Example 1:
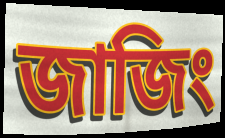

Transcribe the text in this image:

জাজিং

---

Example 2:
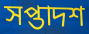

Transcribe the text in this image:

সপ্তাদশ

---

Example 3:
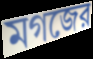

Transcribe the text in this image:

মগজের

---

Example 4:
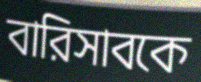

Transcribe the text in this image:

বারিসাবকে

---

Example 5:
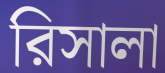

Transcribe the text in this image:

রিসালা